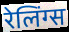
रेलिंग्स